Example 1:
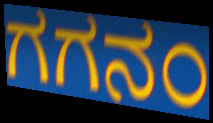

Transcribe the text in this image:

ಗಗನಂ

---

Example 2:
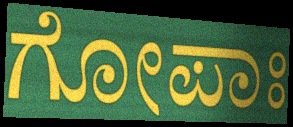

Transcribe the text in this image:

ಗೋಪಾಃ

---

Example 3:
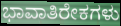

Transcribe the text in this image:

ಭಾವಾತಿರೇಕಗಳು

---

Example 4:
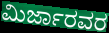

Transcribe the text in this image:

ಮಿರ್ಜಾರವರ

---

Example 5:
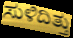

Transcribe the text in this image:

ಸುಳಿದಿತ್ತು